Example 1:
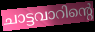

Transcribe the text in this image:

ചാട്ടവാറിന്റെ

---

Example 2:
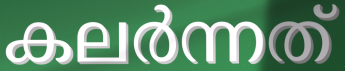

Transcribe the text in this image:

കലർന്നത്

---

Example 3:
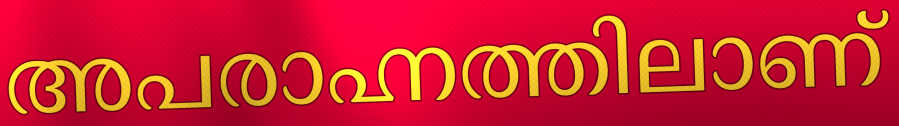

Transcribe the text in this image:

അപരാഹ്നത്തിലാണ്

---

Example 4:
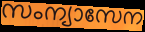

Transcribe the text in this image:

സംന്യാസേന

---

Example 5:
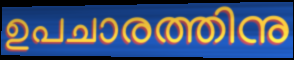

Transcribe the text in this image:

ഉപചാരത്തിനു